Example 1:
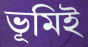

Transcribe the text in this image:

ভূমিই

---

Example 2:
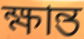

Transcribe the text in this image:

ক্ষান্ত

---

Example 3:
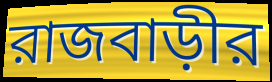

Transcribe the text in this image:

রাজবাড়ীর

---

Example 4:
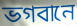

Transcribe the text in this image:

ভগবানে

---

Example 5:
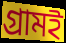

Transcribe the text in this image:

গ্রামই